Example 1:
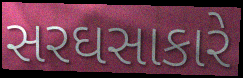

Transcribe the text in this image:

સરઘસાકારે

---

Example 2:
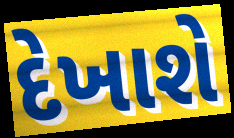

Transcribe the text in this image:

દેખાશે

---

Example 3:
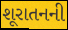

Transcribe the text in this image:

શૂરાતનની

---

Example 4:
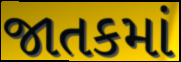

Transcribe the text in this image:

જાતકમાં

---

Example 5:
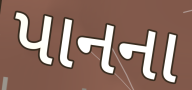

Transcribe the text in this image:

પાનના